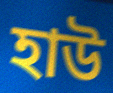
হাউ